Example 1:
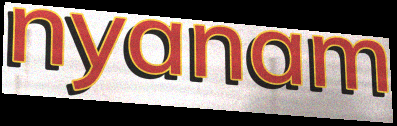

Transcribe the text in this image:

nyanam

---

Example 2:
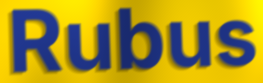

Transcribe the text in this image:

Rubus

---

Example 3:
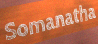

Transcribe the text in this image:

Somanatha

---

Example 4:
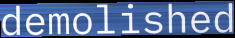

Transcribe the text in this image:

demolished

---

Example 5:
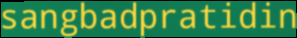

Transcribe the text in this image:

sangbadpratidin